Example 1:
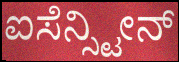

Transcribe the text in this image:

ಐಸೆನ್ಸ್ಟೀನ್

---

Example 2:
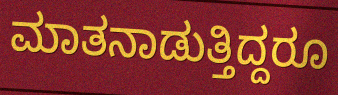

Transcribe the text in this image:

ಮಾತನಾಡುತ್ತಿದ್ದರೂ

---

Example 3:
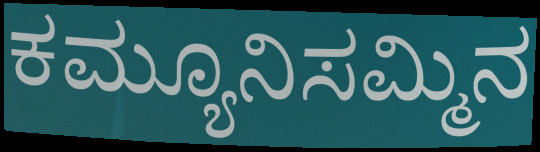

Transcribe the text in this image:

ಕಮ್ಯೂನಿಸಮ್ಮಿನ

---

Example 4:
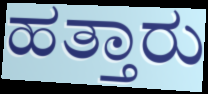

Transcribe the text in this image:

ಹತ್ತಾರು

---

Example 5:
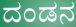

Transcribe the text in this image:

ದಂಡನ